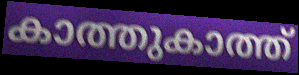
കാത്തുകാത്ത്